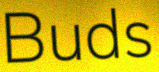
Buds